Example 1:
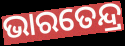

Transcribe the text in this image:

ଭାରତେନ୍ଦ୍ର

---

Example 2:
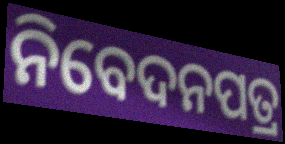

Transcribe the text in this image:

ନିବେଦନପତ୍ର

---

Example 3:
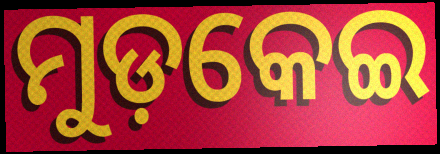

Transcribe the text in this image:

ମୁଡ଼କେଇ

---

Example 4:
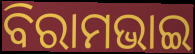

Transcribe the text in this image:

ବିରାମଭାଇ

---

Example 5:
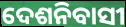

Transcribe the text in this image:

ଦେଶନିବାସୀ